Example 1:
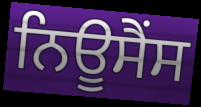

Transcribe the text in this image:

ਨਿਊਸੈਂਸ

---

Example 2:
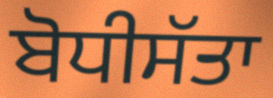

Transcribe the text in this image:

ਬੋਧੀਸੱਤਾ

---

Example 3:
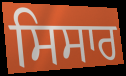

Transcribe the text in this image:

ਸਿਸਾਰ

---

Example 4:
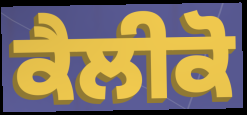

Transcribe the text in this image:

ਕੈਲੀਕੋ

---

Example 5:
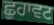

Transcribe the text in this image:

ਛੁਹਾਵਟ